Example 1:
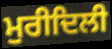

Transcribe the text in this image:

ਮੁਰੀਦਿਲੀ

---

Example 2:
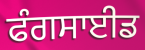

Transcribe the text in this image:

ਫੰਗਸਾਈਡ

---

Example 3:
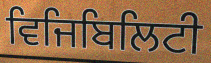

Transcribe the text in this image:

ਵਿਜਿਬਿਲਿਟੀ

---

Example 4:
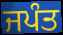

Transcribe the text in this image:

ਜਪੰਤ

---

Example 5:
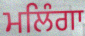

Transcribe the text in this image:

ਮਲਿੰਗਾ